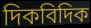
দিকবিদিক